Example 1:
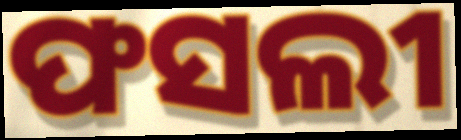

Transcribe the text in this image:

ଫସଲୀ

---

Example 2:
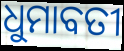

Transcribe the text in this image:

ଧୁମାବତୀ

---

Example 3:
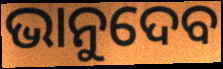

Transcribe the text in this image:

ଭାନୁଦେବ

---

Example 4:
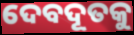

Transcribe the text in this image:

ଦେବଦୂତକୁ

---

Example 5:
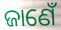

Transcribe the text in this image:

ଜାଣେଁ